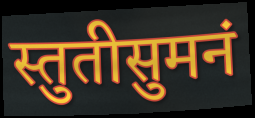
स्तुतीसुमनं